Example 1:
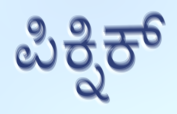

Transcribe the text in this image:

ಪಿಕ್ನಿಕ್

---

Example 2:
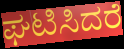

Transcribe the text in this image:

ಘಟಿಸಿದರೆ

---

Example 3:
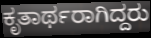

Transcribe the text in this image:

ಕೃತಾರ್ಥರಾಗಿದ್ದರು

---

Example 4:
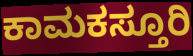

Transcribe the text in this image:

ಕಾಮಕಸ್ತೂರಿ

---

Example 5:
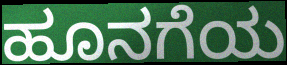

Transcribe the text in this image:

ಹೂನಗೆಯ